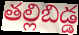
తల్లిబిడ్డ